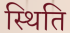
स्थिति